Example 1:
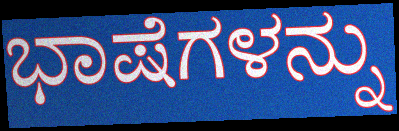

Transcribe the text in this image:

ಭಾಷೆಗಳನ್ನು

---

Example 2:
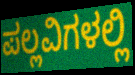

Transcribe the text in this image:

ಪಲ್ಲವಿಗಳಲ್ಲಿ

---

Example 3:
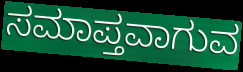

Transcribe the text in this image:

ಸಮಾಪ್ತವಾಗುವ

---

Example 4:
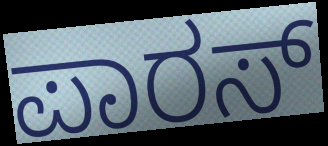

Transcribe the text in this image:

ಪಾರಸ್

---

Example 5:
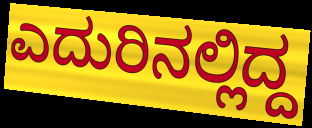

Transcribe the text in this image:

ಎದುರಿನಲ್ಲಿದ್ದ